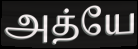
அத்யே